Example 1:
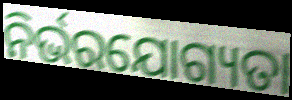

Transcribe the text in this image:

ନିର୍ଭରଯୋଗ୍ୟତା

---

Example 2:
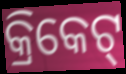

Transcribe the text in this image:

କ୍ରିକେଟ୍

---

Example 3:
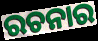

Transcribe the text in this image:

ରଚନାର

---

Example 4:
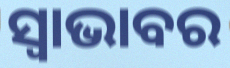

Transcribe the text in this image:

ସ୍ୱାଭାବର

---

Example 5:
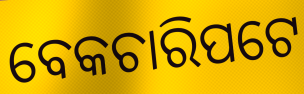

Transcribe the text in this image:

ବେକଚାରିପଟେ